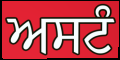
ਅਸਟੰ